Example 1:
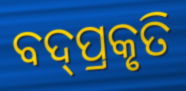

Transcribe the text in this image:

ବଦ୍‌ପ୍ରକୃତି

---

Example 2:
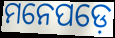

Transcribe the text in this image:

ମନେପଡ଼େ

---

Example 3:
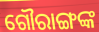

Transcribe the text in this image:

ଗୌରାଙ୍ଗଙ୍କ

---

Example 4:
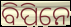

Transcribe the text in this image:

ବିପିନେ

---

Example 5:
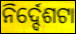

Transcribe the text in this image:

ନିର୍ଦ୍ଦେଶଟା